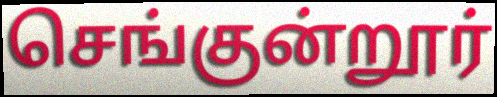
செங்குன்றூர்